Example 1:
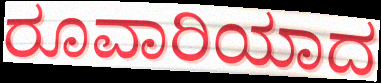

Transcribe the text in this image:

ರೂವಾರಿಯಾದ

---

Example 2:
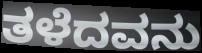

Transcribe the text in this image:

ತಳೆದವನು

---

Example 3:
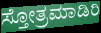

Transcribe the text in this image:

ಸ್ತೋತ್ರಮಾಡಿರಿ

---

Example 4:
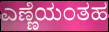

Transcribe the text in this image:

ಎಣ್ಣೆಯಂತಹ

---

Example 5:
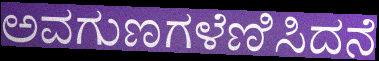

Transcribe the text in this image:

ಅವಗುಣಗಳೆಣಿಸಿದನೆ